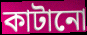
কাটানো